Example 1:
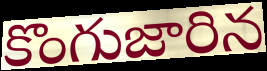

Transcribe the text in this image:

కొంగుజారిన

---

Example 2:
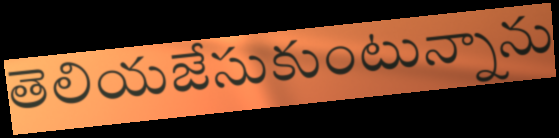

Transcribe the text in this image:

తెలియజేసుకుంటున్నాను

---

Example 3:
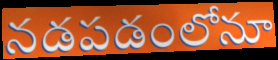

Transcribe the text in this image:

నడపడంలోనూ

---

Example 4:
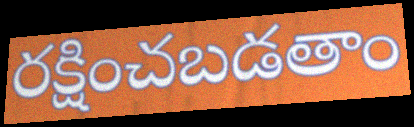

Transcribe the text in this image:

రక్షించబడతాం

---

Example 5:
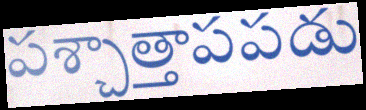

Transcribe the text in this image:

పశ్చాత్తాపపడు